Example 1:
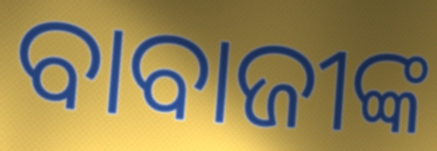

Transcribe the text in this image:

ବାବାଜୀଙ୍କ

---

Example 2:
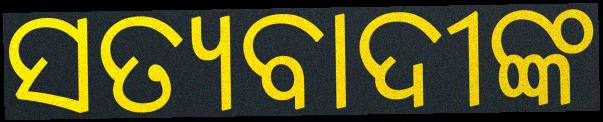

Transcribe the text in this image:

ସତ୍ୟବାଦୀଙ୍କ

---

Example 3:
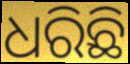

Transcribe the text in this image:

ଧରିଛି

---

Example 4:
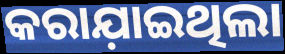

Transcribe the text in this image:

କରାଯ଼ାଇଥିଲା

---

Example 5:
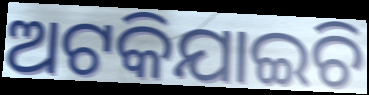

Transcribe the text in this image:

ଅଟକିଯାଇଚି